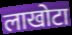
लाखोटा